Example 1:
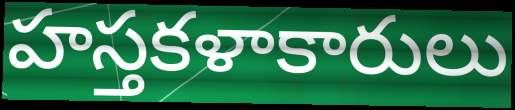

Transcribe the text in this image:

హస్తకళాకారులు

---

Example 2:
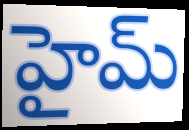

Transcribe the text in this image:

హైమ్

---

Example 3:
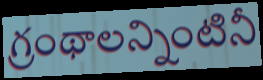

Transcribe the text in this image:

గ్రంథాలన్నింటినీ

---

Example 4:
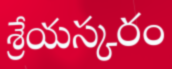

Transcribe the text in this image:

శ్రేయస్కరం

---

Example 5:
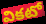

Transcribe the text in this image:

వికటో